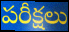
పరీక్షలు